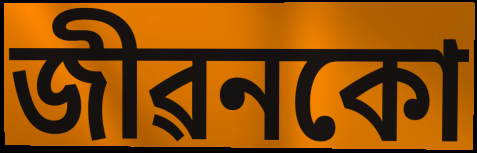
জীৱনকো